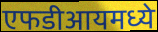
एफडीआयमध्ये